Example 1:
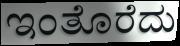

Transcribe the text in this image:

ಇಂತೊರೆದು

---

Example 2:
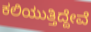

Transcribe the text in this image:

ಕಲಿಯುತ್ತಿದ್ದೇವೆ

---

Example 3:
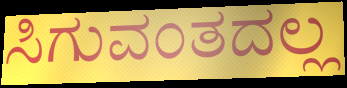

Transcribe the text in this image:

ಸಿಗುವಂತದಲ್ಲ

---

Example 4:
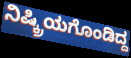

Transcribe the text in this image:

ನಿಷ್ಕ್ರಿಯಗೊಂಡಿದ್ದ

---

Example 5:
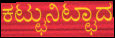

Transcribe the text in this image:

ಕಟ್ಟುನಿಟ್ಟಾದ